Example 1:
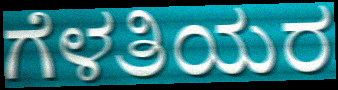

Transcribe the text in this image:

ಗೆಳತಿಯರ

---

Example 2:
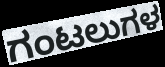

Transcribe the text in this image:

ಗಂಟಲುಗಳ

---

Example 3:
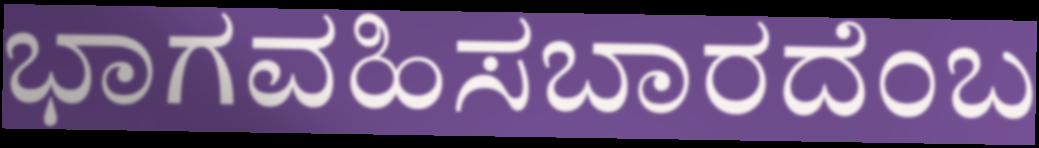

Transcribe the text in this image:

ಭಾಗವಹಿಸಬಾರದೆಂಬ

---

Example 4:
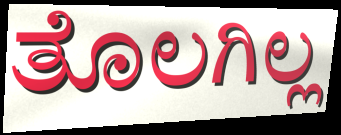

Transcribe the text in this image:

ತೊಲಗಿಲ್ಲ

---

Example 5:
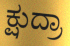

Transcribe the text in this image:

ಕ್ಷುದ್ರಾ